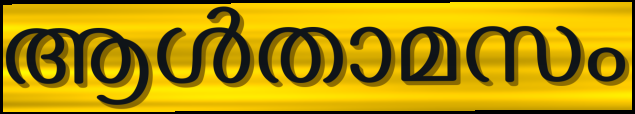
ആൾതാമസം